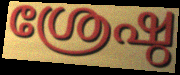
ശ്രേഷ്ഠ